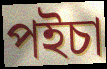
পইচা